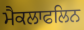
ਮੈਕਲਾਫਲਿਨ